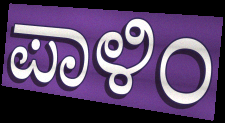
ಪಾಳಿಂ